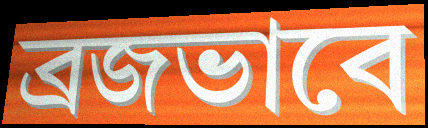
ব্রজভাবে